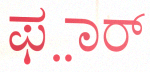
ಫ಼ಾರ್